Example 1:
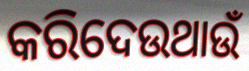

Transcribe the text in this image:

କରିଦେଉଥାଉଁ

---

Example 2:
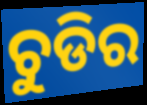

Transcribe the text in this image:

ଚୁଡିର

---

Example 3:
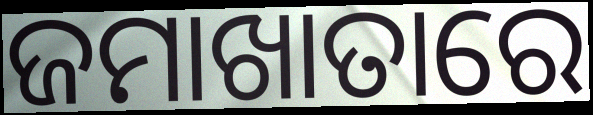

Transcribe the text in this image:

ଜମାଖାତାରେ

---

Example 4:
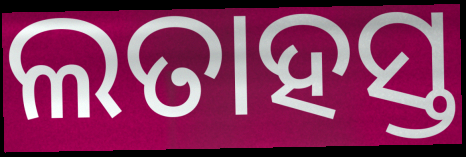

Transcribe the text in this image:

ଲତାହସ୍ତ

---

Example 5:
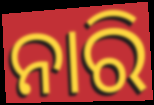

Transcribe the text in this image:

ନାରି